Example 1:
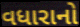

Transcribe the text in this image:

વધારાનો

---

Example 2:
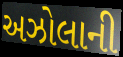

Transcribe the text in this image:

અઝોલાની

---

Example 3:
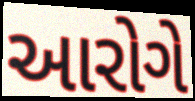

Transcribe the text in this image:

આરોગે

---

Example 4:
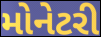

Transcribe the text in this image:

મોનેટરી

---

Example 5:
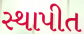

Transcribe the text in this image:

સ્થાપીત